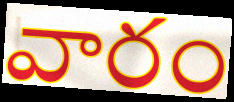
వారం